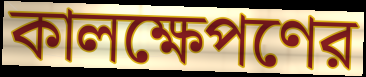
কালক্ষেপণের